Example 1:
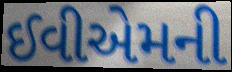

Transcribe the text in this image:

ઈવીએમની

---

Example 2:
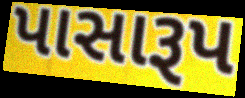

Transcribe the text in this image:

પાસારૂપ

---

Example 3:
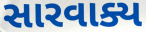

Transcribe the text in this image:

સારવાક્ય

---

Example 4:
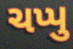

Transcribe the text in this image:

ચપ્પુ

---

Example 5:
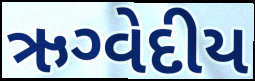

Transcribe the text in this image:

ઋગ્વેદીય